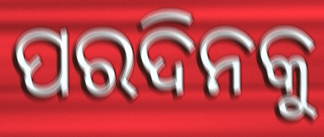
ପରଦିନକୁ